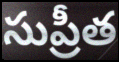
సుప్రీత